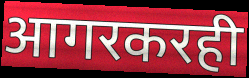
आगरकरही